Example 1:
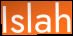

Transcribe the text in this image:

Islah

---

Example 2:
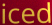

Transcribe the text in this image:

iced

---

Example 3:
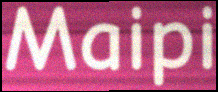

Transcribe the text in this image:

Maipi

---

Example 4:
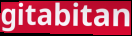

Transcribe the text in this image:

gitabitan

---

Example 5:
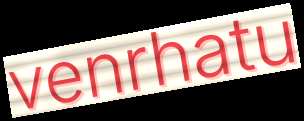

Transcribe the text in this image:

venrhatu